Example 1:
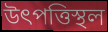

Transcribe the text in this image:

উৎপত্তিস্থল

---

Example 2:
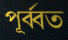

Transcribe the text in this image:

পূৰ্ব্বত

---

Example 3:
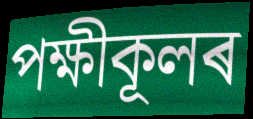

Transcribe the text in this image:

পক্ষীকূলৰ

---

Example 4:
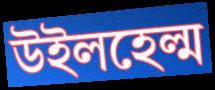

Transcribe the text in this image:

উইলহেল্ম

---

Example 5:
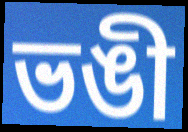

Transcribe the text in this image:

ভঙী